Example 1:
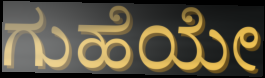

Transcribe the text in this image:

ಗುಹೆಯೇ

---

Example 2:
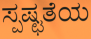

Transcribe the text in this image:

ಸ್ಪಷ್ಟತೆಯ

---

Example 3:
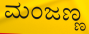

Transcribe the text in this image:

ಮಂಜಣ್ಣ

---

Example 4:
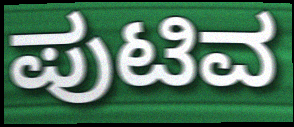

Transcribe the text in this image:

ಪುಟಿವ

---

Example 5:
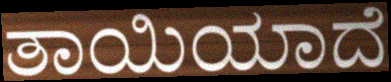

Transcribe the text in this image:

ತಾಯಿಯಾದೆ